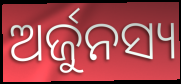
ଅର୍ଜୁନସ୍ୟ